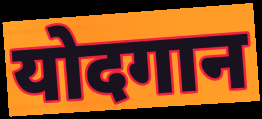
योदगान